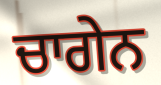
ਚਾਗੇਨ